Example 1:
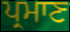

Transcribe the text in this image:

ਪ੍ਰਮਾਣ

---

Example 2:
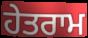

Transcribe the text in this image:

ਹੇਤਰਾਮ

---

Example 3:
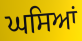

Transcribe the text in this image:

ਘਸਿਆਂ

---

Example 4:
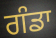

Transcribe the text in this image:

ਗੰਡਾ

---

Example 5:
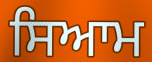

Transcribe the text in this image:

ਸਿਆਮ